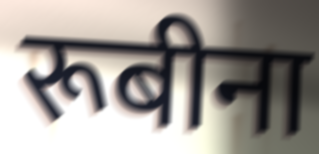
रूबीना